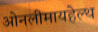
ओनलीमायहेल्थ